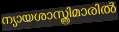
ന്യായശാസ്ത്രിമാരിൽ